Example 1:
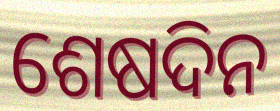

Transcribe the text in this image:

ଶେଷଦିନ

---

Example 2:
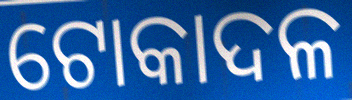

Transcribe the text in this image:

ଟୋକାଦଳ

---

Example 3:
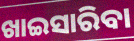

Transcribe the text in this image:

ଖାଇସାରିବା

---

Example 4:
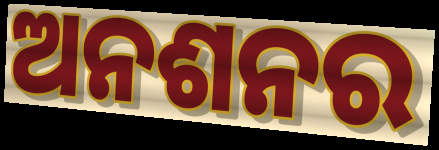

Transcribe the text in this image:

ଅନଶନର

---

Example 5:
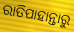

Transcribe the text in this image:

ରାତିପାହାନ୍ତାରୁ